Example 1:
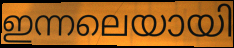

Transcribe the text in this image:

ഇന്നലെയായി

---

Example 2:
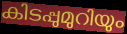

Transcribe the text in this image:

കിടപ്പുമുറിയും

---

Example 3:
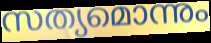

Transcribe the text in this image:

സത്യമൊന്നും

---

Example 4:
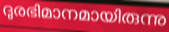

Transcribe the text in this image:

ദുരഭിമാനമായിരുന്നു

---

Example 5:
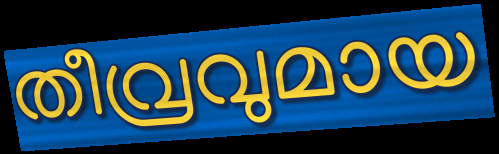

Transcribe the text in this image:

തീവ്രവുമായ